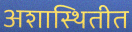
अशास्थितीत